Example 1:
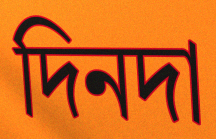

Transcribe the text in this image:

দিনদা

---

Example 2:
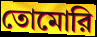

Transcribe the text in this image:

তোমোরি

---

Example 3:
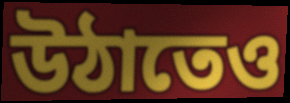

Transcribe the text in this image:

উঠাতেও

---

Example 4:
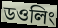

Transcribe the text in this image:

ডওলিং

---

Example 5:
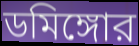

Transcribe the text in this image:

ডমিঙ্গোর